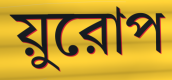
য়ুরোপ